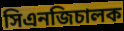
সিএনজিচালক